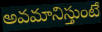
అవమానిస్తుంటే